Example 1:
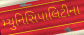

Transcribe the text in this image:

મ્યુનિસિપાલિટીના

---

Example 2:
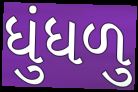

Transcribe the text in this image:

ધુંધળુ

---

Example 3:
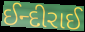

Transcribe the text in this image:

ઈન્દીરાઈ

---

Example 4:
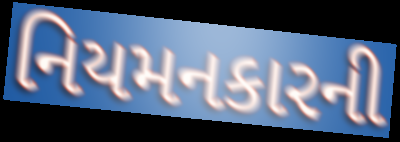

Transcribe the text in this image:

નિયમનકારની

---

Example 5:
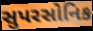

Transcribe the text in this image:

સુપરસોનિક